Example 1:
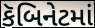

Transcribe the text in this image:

કૅબિનેટમાં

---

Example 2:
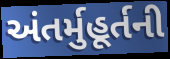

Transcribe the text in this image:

અંતર્મુહૂર્તની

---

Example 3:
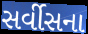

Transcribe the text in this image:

સર્વીસના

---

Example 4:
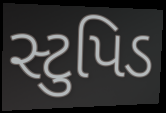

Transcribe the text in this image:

સ્ટુપિડ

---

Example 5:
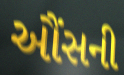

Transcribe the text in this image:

ઔંસની